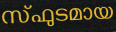
സ്ഫുടമായ